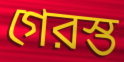
গেরস্ত